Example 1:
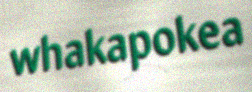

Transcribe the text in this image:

whakapokea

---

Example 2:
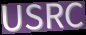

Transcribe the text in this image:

USRC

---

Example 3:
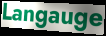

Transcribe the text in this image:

Langauge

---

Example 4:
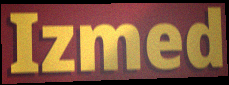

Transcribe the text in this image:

Izmed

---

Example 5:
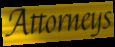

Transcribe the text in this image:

Attorneys